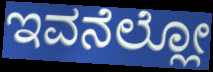
ಇವನೆಲ್ಲೋ